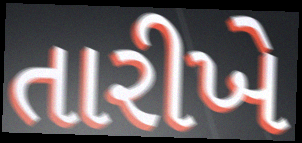
તારીખે